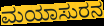
ಮಯಾಸುರನ